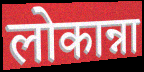
लोकान्ना